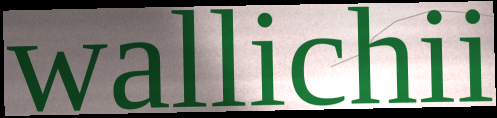
wallichii